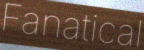
Fanatical